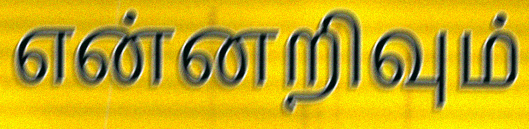
என்னறிவும்